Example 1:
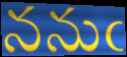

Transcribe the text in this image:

ననుఁ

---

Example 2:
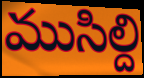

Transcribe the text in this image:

ముసిల్ది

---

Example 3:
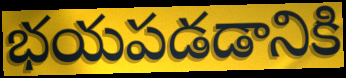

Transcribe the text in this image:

భయపడడానికి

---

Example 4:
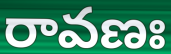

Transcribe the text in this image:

రావణః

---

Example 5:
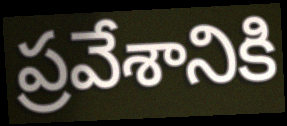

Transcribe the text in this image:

ప్రవేశానికి